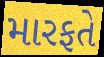
મારફતે